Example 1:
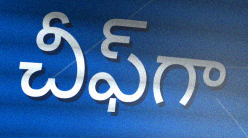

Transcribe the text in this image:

చీఫ్‌గా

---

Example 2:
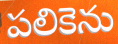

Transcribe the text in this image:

పలికెను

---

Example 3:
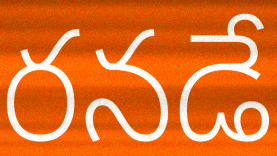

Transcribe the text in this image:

రనడే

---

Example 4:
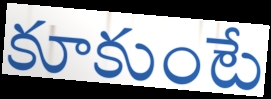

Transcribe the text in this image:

కూకుంటే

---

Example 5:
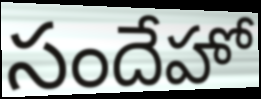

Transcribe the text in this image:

సందేహో